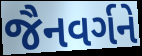
જૈનવર્ગને